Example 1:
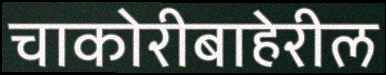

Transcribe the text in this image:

चाकोरीबाहेरील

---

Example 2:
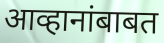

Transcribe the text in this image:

आव्हानांबाबत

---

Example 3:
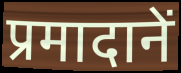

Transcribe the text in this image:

प्रमादानें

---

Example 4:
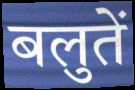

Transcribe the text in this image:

बलुतें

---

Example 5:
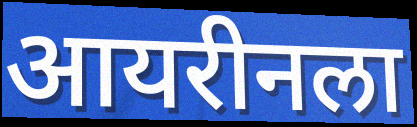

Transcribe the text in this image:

आयरीनला